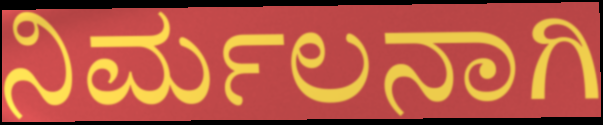
ನಿರ್ಮಲನಾಗಿ